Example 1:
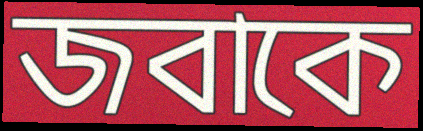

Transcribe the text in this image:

জবাকে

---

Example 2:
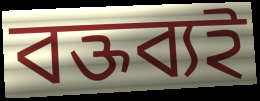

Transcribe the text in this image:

বক্তব্যই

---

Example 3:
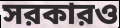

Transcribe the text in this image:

সরকারও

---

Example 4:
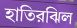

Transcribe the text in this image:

হাতিরঝিল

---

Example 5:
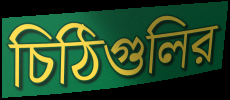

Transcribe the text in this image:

চিঠিগুলির